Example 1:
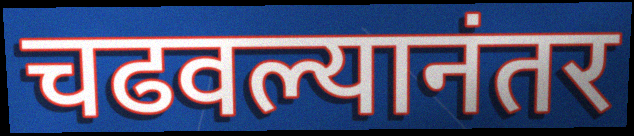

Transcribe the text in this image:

चढवल्यानंतर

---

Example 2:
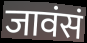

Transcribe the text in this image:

जावंसं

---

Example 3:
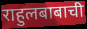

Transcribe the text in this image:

राहुलबाबाची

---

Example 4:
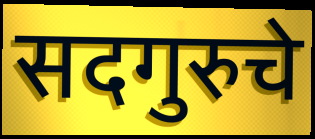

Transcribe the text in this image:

सदगुरुचे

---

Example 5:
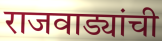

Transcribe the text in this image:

राजवाड्यांची